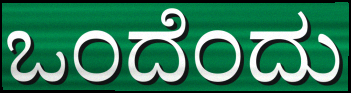
ಒಂದೆಂದು